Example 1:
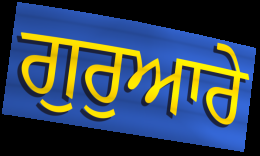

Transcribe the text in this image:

ਗੁਰੁਆਰੇ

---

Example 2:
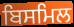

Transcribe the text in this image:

ਬਿਸਮਿਲ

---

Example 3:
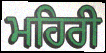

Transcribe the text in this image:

ਮਹਿਰੀ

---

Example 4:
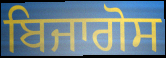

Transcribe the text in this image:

ਬਿਜਾਗੋਸ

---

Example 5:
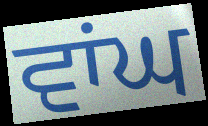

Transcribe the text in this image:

ਵਾਂਘ